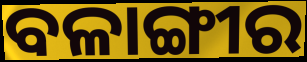
ବଳାଙ୍ଗୀର